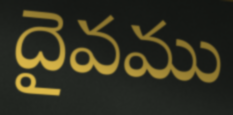
దైవము